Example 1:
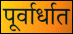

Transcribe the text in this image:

पूर्वार्धात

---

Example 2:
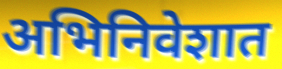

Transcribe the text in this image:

अभिनिवेशात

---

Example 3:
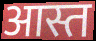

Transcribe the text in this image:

आस्त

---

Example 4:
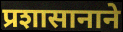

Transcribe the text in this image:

प्रशासानाने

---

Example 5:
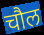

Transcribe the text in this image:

चौल